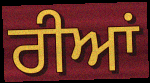
ਰੀਆਂ